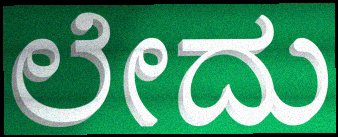
ಲೇದು